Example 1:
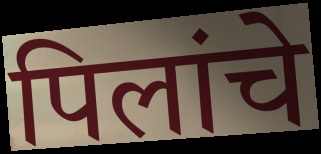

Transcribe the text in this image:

पिलांचे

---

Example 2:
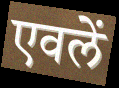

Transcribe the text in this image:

एवलें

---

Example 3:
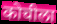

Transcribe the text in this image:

कोचीला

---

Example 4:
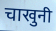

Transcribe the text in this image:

चाखुनी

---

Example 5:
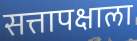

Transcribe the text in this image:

सत्तापक्षाला